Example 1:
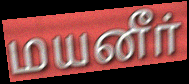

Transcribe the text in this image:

மயனீர்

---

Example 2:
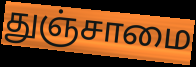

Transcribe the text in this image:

துஞ்சாமை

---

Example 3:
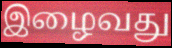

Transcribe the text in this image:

இழைவது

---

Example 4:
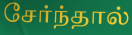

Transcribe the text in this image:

சேர்ந்தால்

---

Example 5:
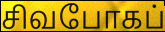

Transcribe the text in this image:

சிவபோகப்